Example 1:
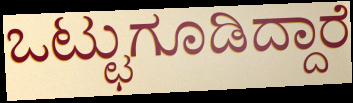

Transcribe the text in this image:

ಒಟ್ಟುಗೂಡಿದ್ದಾರೆ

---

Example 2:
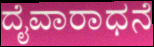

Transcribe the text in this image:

ದೈವಾರಾಧನೆ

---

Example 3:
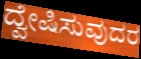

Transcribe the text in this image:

ದ್ವೇಷಿಸುವುದರ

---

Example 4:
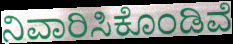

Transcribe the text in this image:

ನಿವಾರಿಸಿಕೊಂಡಿವೆ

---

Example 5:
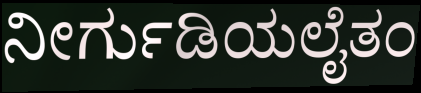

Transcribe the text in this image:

ನೀರ್ಗುಡಿಯಲೈತಂ